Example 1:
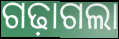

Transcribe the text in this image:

ଗଢ଼ାଗଲା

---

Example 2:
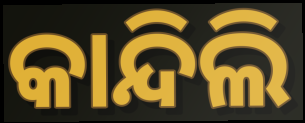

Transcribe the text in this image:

କାନ୍ଦିଲି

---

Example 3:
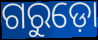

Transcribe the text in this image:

ଗରୁଡ଼ୋ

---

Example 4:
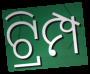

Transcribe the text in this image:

ଟ୍ରିମ୍ପ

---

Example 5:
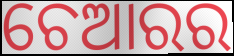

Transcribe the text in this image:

ଚେଆରର